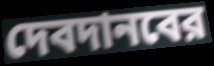
দেবদানবের